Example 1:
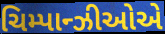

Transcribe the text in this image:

ચિમ્પાન્ઝીઓએ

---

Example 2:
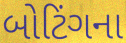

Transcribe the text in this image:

બોટિંગના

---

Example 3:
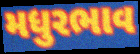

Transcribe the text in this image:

મધુરભાવ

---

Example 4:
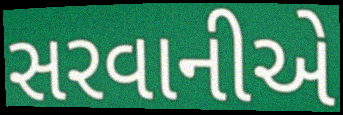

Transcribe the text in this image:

સરવાનીએ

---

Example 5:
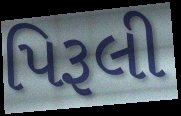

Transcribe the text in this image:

પિરૂલી